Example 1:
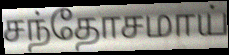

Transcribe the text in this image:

சந்தோசமாய்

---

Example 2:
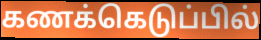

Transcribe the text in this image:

கணக்கெடுப்பில்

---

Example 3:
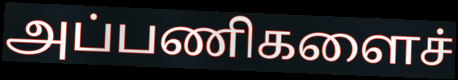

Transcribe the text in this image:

அப்பணிகளைச்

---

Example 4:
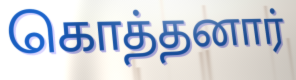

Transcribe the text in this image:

கொத்தனார்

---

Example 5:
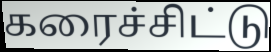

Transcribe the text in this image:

கரைச்சிட்டு